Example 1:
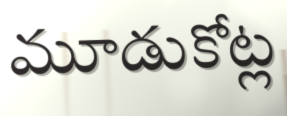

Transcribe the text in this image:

మూడుకోట్ల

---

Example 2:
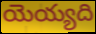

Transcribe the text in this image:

యెయ్యది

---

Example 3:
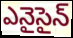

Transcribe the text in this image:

ఎనైసైన్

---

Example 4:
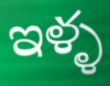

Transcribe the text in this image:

ఇళ్ళ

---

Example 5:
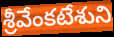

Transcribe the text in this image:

శ్రీవేంకటేశుని